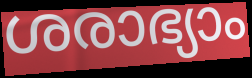
ശരാഭ്യാം